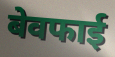
बेवफाई